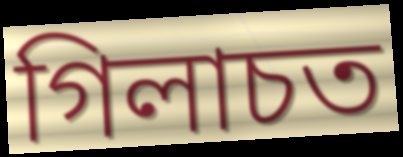
গিলাচত